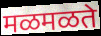
मळमळते